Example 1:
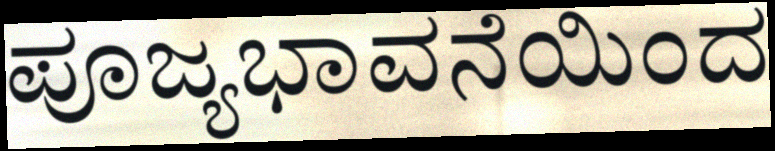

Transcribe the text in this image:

ಪೂಜ್ಯಭಾವನೆಯಿಂದ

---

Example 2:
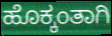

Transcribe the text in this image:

ಹೊಕ್ಕಂತಾಗಿ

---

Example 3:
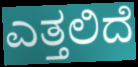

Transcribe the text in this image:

ಎತ್ತಲಿದೆ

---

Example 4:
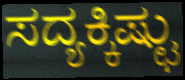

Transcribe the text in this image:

ಸದ್ಯಕ್ಕಿಷ್ಟು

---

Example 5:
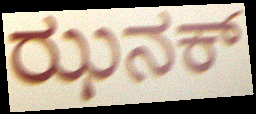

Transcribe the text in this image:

ಝನಕ್